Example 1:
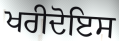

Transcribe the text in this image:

ਖਰੀਦੋਇਸ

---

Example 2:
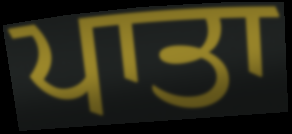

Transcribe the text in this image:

ਪਾਤਾ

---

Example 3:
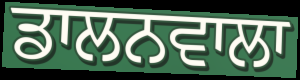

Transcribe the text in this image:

ਡਾਲਨਵਾਲਾ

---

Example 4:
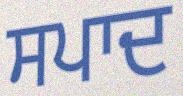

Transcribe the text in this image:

ਸਪਾਦ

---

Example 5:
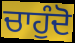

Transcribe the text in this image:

ਚਾਹੁੰਦੋ